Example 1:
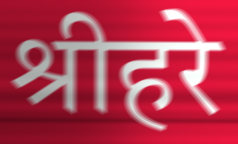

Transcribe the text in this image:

श्रीहरे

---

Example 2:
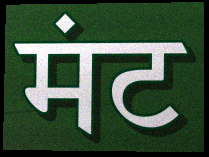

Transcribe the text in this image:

मंट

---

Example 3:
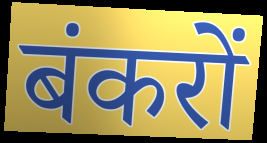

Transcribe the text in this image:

बंकरों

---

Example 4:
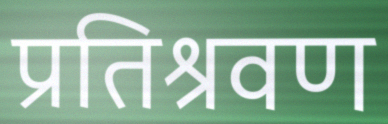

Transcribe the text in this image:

प्रतिश्रवण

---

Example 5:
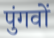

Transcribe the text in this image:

पुंगवों